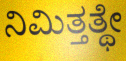
ನಿಮಿತ್ತತ್ಥೇ